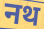
नथ